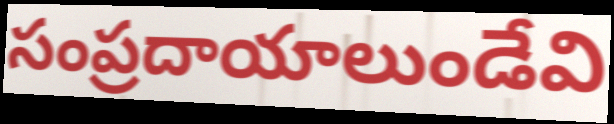
సంప్రదాయాలుండేవి